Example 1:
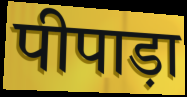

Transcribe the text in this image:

पीपाड़ा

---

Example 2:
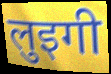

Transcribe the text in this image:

लुइगी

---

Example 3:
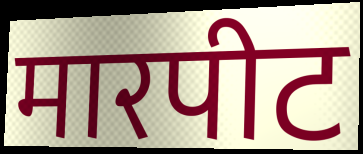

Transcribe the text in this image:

मारपीट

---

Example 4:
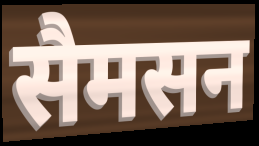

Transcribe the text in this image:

सैमसन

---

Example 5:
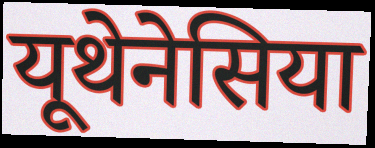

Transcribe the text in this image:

यूथेनेसिया